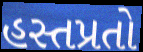
હસ્તપ્રતો